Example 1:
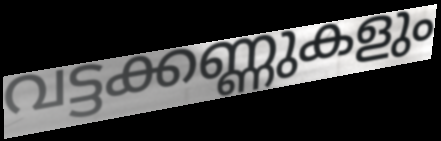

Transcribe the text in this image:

വട്ടക്കണ്ണുകളും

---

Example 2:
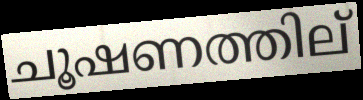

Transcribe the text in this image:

ചൂഷണത്തില്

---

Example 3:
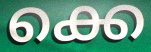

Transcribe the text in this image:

ക്കെ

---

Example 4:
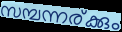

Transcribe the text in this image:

സമ്പന്നര്ക്കും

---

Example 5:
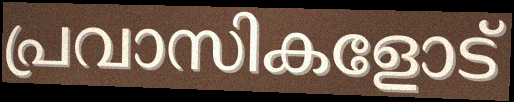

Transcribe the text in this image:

പ്രവാസികളോട്